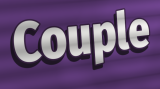
Couple